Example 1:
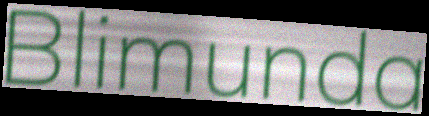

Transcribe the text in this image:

Blimunda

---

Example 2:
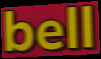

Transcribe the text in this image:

bell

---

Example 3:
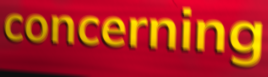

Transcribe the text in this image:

concerning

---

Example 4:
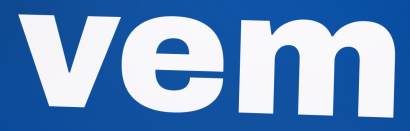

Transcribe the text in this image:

vem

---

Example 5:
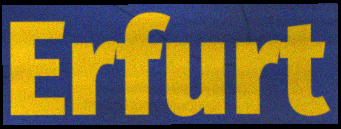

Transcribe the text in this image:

Erfurt